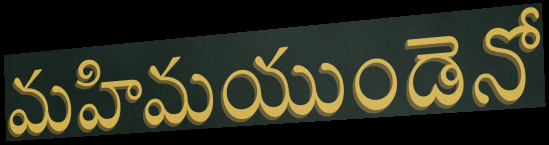
మహిమయుండెనో